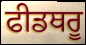
ਫੀਡਥਰੂ